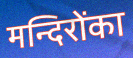
मन्दिरोंका